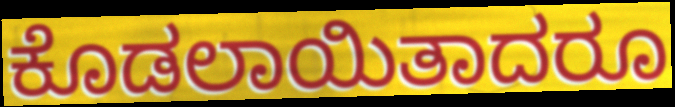
ಕೊಡಲಾಯಿತಾದರೂ